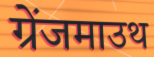
ग्रेंजमाउथ